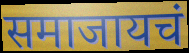
समाजायचं